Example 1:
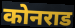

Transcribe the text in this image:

कोनराड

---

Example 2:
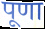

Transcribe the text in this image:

पूणा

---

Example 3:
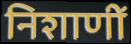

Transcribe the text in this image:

निशाणीं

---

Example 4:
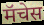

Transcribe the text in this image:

मॅचेस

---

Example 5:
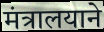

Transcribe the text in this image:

मंत्रालयाने